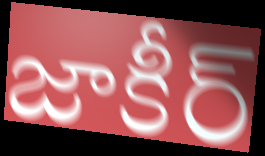
జాకీర్